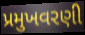
પ્રમુખવરણી